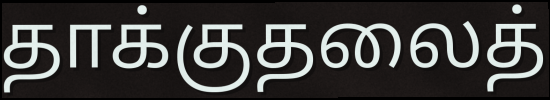
தாக்குதலைத்